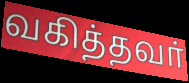
வகித்தவர்